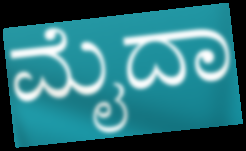
ಮೈದಾ